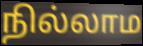
நில்லாம